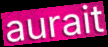
aurait